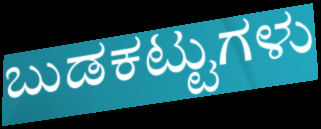
ಬುಡಕಟ್ಟುಗಳು